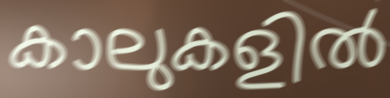
കാലുകളിൽ